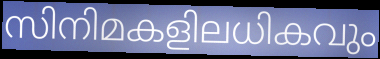
സിനിമകളിലധികവും